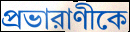
প্রভারাণীকে